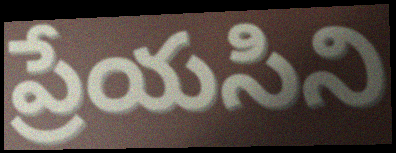
ప్రేయసిని